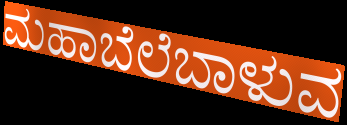
ಮಹಾಬೆಲೆಬಾಳುವ